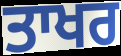
ਤਾਖਰ